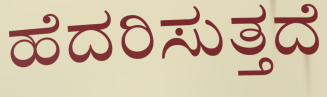
ಹೆದರಿಸುತ್ತದೆ